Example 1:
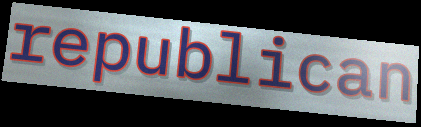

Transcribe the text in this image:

republican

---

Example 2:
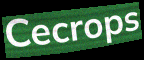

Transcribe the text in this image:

Cecrops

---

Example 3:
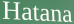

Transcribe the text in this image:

Hatana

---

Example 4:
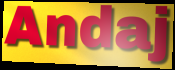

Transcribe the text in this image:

Andaj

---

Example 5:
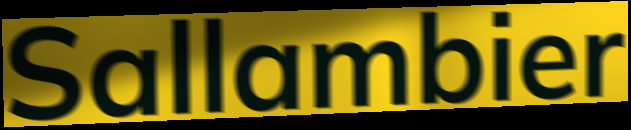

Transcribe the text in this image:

Sallambier